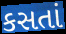
કસતાં